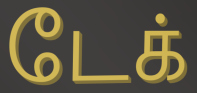
டேக்